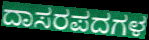
ದಾಸರಪದಗಳ